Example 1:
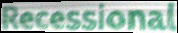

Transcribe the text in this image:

Recessional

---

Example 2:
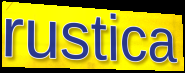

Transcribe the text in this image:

rustica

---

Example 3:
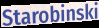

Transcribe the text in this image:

Starobinski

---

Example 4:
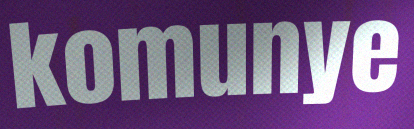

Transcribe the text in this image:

komunye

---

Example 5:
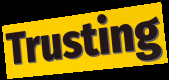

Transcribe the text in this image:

Trusting